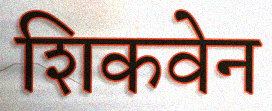
शिकवेन